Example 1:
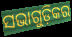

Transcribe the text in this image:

ସଭାଗୁଡ଼ିକର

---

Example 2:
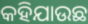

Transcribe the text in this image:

କହିଯାଉଛ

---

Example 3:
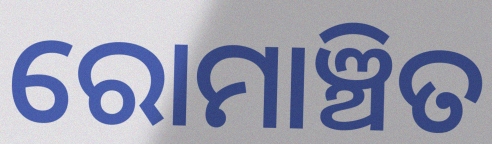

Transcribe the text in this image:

ରୋମାଞ୍ଚିତ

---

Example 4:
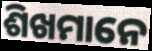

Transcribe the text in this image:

ଶିଖମାନେ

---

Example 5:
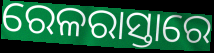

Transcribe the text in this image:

ରେଳରାସ୍ତାରେ